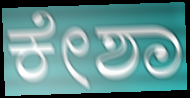
ಕೇಶಾ